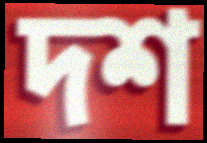
দশ